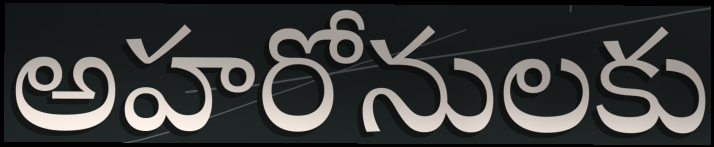
అహరోనులకు